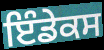
ਇੰਡੇਕਸ